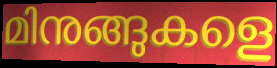
മിനുങ്ങുകളെ